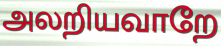
அலறியவாறே